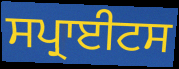
ਸਪ੍ਰਾਈਟਸ